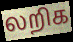
லறிக